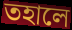
তহালে